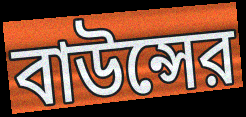
বাউন্সের